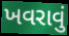
ખવરાવું